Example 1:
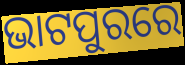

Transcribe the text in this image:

ଭାଟପୁରରେ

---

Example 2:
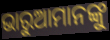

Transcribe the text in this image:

ଭାରୁଆମାନଙ୍କୁ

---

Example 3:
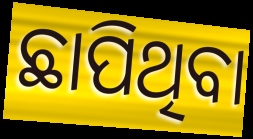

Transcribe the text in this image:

ଛାପିଥିବା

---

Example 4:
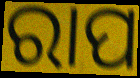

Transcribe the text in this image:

ରାପ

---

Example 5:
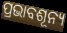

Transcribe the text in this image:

ପ୍ରଭାବଶୂନ୍ୟ